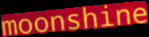
moonshine